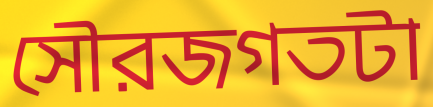
সৌরজগতটা